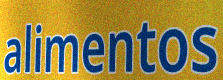
alimentos